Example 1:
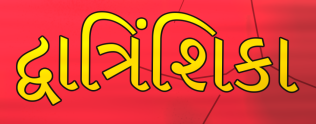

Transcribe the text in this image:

દ્વાત્રિંશિકા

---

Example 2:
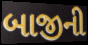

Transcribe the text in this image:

બાજીની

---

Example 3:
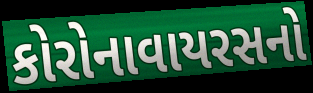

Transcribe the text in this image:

કોરોનાવાયરસનો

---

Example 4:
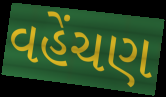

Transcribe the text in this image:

વહેંચણ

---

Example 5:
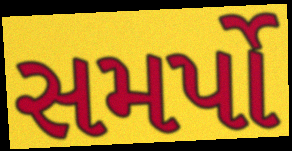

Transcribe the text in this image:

સમર્પો